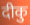
दीकु